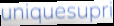
uniquesupri